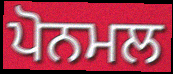
ਪੋਨਮਲ